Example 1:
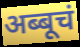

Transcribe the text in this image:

अब्बूचं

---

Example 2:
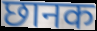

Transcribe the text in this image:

छानक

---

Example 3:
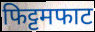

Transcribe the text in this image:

फिट्टमफाट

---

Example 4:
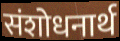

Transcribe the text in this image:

संशोधनार्थ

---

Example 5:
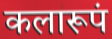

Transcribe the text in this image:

कलारूपं